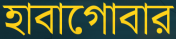
হাবাগোবার